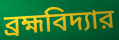
ব্রহ্মবিদ্যার